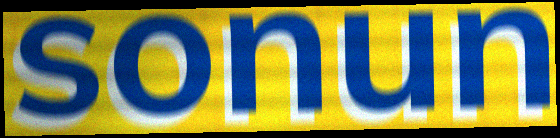
sonun